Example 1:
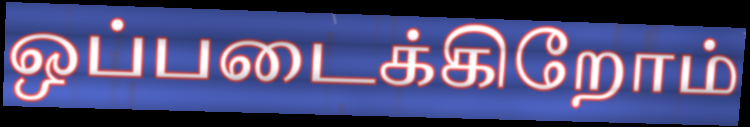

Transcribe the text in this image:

ஒப்படைக்கிறோம்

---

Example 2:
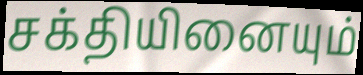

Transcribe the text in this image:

சக்தியினையும்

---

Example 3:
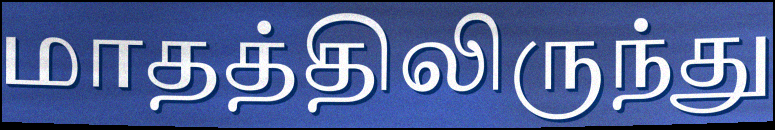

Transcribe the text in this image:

மாதத்திலிருந்து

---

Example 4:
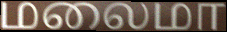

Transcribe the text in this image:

மலைமா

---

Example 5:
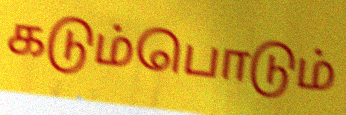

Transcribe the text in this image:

கடும்பொடும்